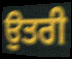
ਉਤਰੀ